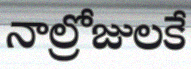
నాల్రోజులకే